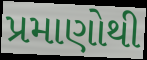
પ્રમાણોથી